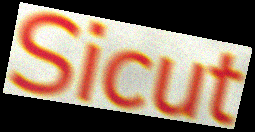
Sicut